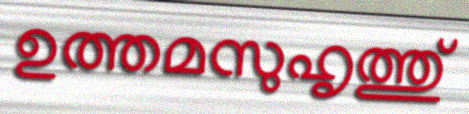
ഉത്തമസുഹൃത്തു്